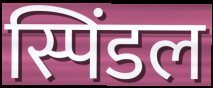
स्पिंडल